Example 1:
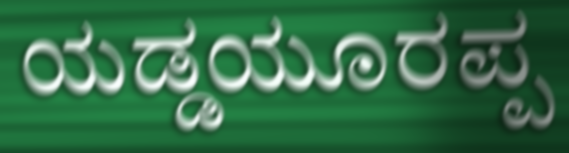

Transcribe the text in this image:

ಯಡ್ಡಯೂರಪ್ಪ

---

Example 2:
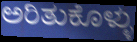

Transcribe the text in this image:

ಅರಿತುಕೊಳ್ಳು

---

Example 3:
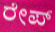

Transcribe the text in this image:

ರೇಪ್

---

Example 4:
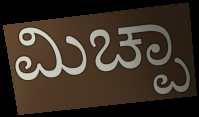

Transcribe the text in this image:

ಮಿಚ್ಪಾ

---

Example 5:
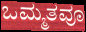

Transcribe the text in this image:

ಒಮ್ಮತವೂ